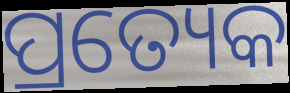
ପ୍ରତ୍ୟେକ